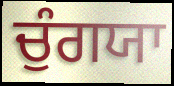
ਚੁੰਗਯਾ